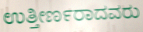
ಉತ್ತೀರ್ಣರಾದವರು